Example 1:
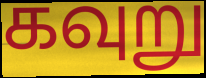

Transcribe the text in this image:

கவுறு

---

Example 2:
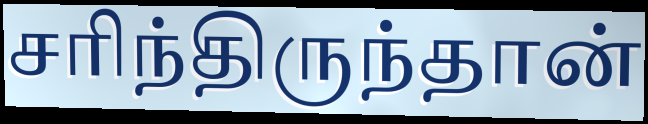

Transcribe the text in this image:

சரிந்திருந்தான்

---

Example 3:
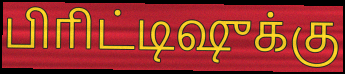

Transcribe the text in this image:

பிரிட்டிஷுக்கு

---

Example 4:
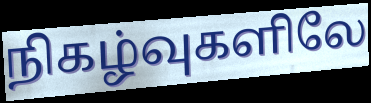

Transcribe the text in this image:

நிகழ்வுகளிலே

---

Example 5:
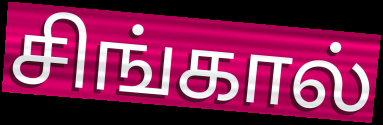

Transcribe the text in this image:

சிங்கால்